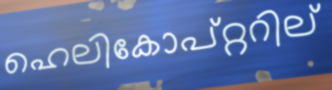
ഹെലികോപ്റ്ററില്